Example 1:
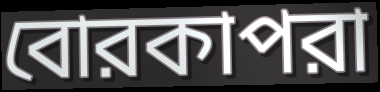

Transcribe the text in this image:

বোরকাপরা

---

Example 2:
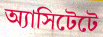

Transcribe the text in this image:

অ্যাসিটেটে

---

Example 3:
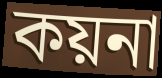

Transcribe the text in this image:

কয়না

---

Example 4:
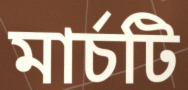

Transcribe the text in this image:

মার্চটি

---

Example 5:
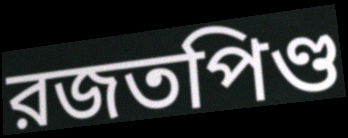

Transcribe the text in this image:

রজতপিণ্ড